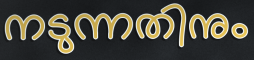
നടുന്നതിനും